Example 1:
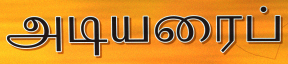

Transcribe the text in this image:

அடியரைப்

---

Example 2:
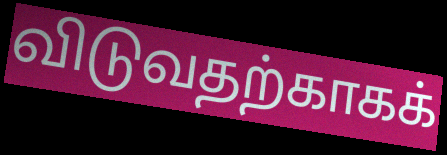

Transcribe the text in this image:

விடுவதற்காகக்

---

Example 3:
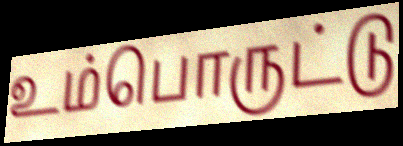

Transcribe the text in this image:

உம்பொருட்டு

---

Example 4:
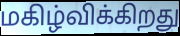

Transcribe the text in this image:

மகிழ்விக்கிறது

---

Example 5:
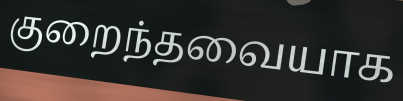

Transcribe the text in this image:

குறைந்தவையாக